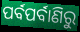
ପର୍ବପର୍ବାଣିରୁ